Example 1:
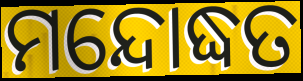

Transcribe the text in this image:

ମନ୍ଦୋଦ୍ଧତ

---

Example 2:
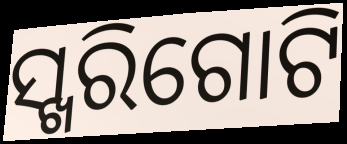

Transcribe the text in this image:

ସ୍ଖରିଗୋଟି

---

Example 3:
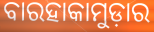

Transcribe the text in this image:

ବାରହାକାମୁଡ଼ାର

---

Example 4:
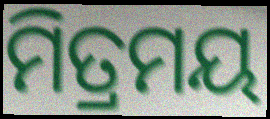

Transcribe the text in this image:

ମିତ୍ରମୟ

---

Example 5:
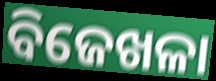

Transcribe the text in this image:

ବିଜେଖଳା